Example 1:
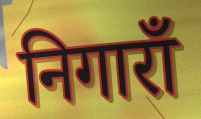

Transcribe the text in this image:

निगाराँ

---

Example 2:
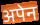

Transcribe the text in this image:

अपेन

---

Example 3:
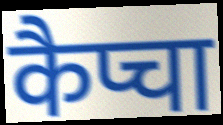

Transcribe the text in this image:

कैप्चा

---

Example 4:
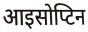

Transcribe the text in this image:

आइसोप्टिन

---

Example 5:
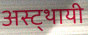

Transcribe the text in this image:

अस्ट्थायी